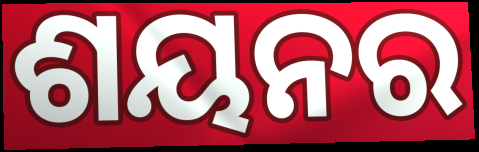
ଶୟନର